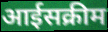
आईसक्रीम